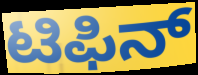
ಟಿಫಿನ್